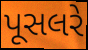
પૂસલરે